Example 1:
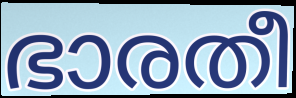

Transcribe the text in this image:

ഭാരതീ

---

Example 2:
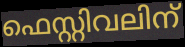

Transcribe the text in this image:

ഫെസ്റ്റിവലിന്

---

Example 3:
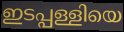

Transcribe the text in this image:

ഇടപ്പള്ളിയെ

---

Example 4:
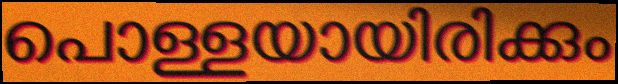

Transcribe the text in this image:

പൊള്ളയായിരിക്കും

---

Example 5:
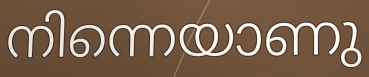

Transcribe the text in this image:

നിന്നെയാണു